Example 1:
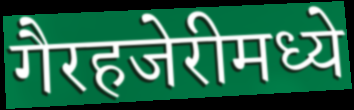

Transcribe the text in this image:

गैरहजेरीमध्ये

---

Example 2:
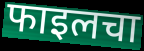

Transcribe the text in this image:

फाइलचा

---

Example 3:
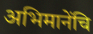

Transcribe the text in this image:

अभिमानेंचि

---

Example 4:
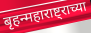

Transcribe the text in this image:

बृहन्महाराष्ट्राच्या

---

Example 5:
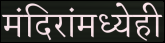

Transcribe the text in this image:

मंदिरांमध्येही